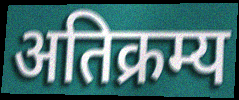
अतिक्रम्य